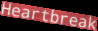
Heartbreak